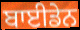
ਬਾਈਡੇਨ